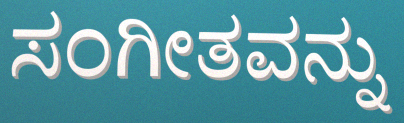
ಸಂಗೀತವನ್ನು